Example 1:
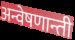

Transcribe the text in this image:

अन्वेषणान्ती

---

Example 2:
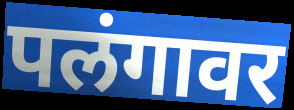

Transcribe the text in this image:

पलंगावर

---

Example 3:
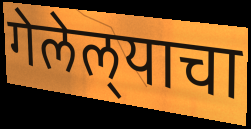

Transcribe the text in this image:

गेलेल्याचा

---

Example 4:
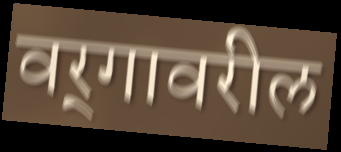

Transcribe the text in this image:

वर्गावरील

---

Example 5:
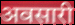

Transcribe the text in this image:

अवसारी